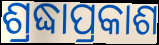
ଶ୍ରଦ୍ଧାପ୍ରକାଶ